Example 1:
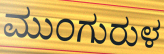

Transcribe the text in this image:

ಮುಂಗುರುಳ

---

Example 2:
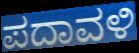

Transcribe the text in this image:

ಪದಾವಳಿ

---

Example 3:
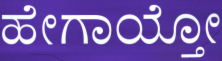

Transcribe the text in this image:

ಹೇಗಾಯ್ತೋ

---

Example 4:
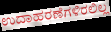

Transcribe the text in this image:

ಉದಾಹರಣೆಗಳಿರಲಿಲ್ಲ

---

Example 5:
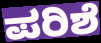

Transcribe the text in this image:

ಪರಿಶೆ